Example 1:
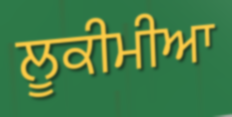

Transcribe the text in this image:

ਲੂਕੀਮੀਆ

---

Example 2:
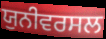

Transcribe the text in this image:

ਯੁਨੀਵਰਸਲ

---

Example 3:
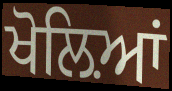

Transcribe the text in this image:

ਖੋਲ਼ਿਆਂ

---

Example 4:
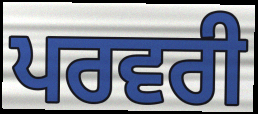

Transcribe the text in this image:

ਪਰਵਰੀ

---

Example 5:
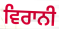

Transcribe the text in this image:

ਵਿਰਾਨੀ